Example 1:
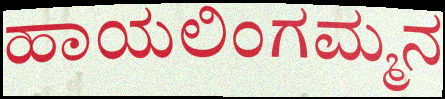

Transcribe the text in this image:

ಹಾಯಲಿಂಗಮ್ಮನ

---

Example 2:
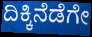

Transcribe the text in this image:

ದಿಕ್ಕಿನೆಡೆಗೇ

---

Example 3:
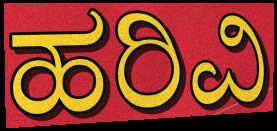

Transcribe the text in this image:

ಹರಿವಿ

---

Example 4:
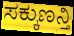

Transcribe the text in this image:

ಸಕ್ಕುಣನ್ತಿ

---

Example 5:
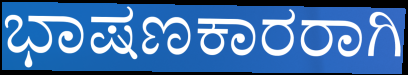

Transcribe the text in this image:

ಭಾಷಣಕಾರರಾಗಿ